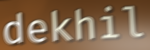
dekhil